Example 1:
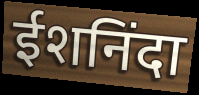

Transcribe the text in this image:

ईशनिंदा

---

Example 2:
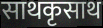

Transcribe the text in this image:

साथकृसाथ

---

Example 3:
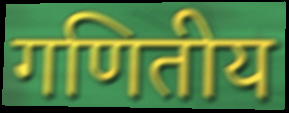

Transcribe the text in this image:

गणितीय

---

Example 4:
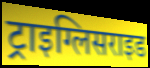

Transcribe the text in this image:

ट्राइग्लिसराइड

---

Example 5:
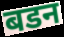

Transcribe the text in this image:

बडन